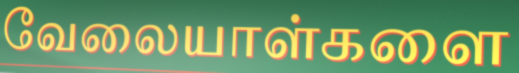
வேலையாள்களை